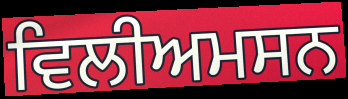
ਵਿਲੀਅਮਸਨ